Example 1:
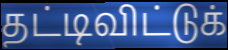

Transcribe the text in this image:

தட்டிவிட்டுக்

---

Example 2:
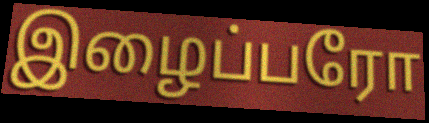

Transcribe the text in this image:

இழைப்பரோ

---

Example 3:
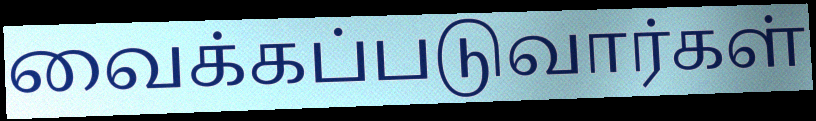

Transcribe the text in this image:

வைக்கப்படுவார்கள்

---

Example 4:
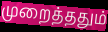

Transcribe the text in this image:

முறைத்ததும்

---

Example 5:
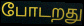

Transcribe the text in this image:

போடறது